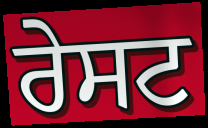
ਰੇਸਟ